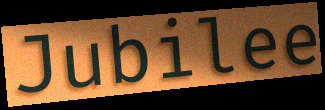
Jubilee